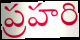
ప్రహరి